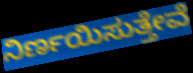
ನಿರ್ಣಯಿಸುತ್ತೇವೆ